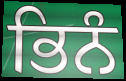
ਭਿਨੰ